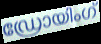
ഡ്രോയിംഗ്